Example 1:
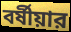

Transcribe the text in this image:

বর্ষীয়ার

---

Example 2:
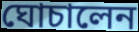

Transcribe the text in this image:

ঘোচালেন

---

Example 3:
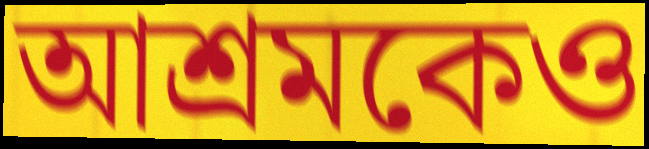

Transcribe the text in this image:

আশ্রমকেও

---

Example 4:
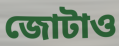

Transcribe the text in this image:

জোটাও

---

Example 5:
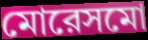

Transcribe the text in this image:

মোরেসমো